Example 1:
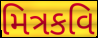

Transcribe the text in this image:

મિત્રકવિ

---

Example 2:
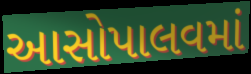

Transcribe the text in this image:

આસોપાલવમાં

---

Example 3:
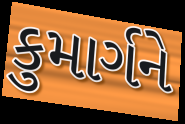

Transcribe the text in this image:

કુમાર્ગને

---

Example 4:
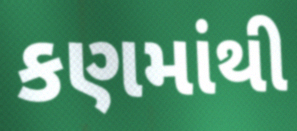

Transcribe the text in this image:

કણમાંથી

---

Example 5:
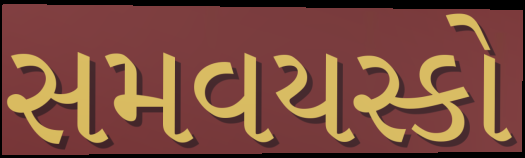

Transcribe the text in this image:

સમવયસ્કો